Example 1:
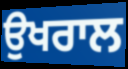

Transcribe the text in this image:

ਉਖਰਾਲ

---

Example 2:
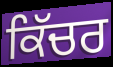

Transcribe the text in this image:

ਕਿੱਚਰ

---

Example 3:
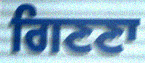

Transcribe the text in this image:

ਗਿਣਣਾ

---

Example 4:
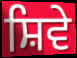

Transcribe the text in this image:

ਸ਼ਿਵੇ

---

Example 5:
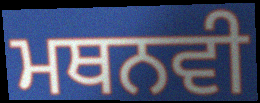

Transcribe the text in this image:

ਮਥਨਵੀ